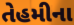
તેહમીના